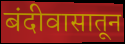
बंदीवासातून